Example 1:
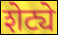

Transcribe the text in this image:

शेट्ये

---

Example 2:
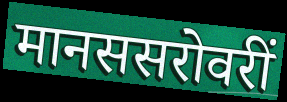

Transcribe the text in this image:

मानससरोवरीं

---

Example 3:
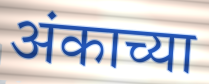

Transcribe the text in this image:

अंकाच्या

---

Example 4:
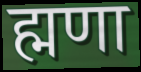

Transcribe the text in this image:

ह्मणा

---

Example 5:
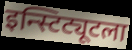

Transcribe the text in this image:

इन्स्टिट्यूटला